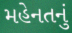
મહેનતનું